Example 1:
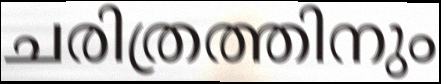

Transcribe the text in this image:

ചരിത്രത്തിനും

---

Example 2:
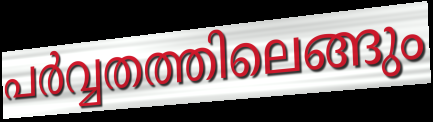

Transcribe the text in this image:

പർവ്വതത്തിലെങ്ങും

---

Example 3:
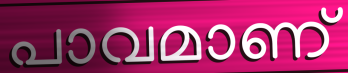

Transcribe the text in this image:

പാവമാണ്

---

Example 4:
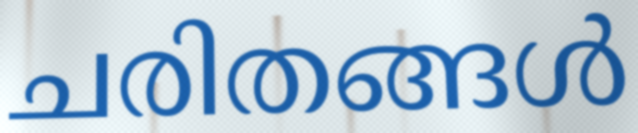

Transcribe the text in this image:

ചരിതങ്ങൾ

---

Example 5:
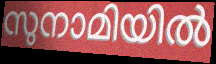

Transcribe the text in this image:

സുനാമിയിൽ